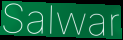
Salwar